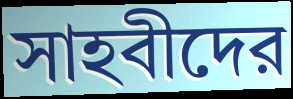
সাহবীদের